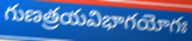
గుణత్రయవిభాగయోగః